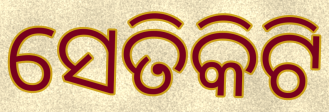
ସେତିକିଟି